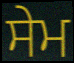
ਸੇਮ